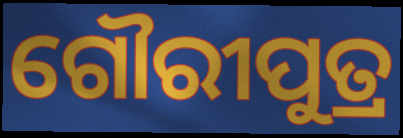
ଗୌରୀପୁତ୍ର